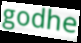
godhe